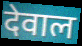
देवाल